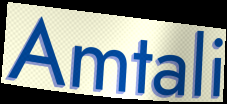
Amtali